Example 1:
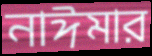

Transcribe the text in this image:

নাঈমার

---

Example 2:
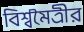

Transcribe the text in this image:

বিশ্বমৈত্রীর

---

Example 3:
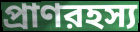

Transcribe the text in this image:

প্রাণরহস্য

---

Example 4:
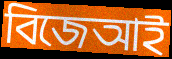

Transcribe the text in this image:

বিজেআই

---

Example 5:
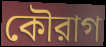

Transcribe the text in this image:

কৌরাগ